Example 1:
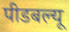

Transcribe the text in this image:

पीडबल्यू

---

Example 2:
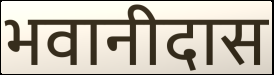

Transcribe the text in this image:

भवानीदास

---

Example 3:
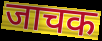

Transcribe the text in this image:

जाचक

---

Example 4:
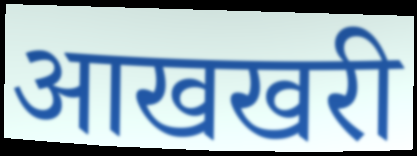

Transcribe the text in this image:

आखखरी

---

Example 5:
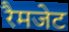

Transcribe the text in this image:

रैमजेट